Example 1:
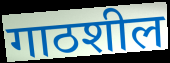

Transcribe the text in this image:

गाठशील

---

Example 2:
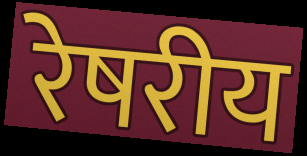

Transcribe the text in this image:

रेषरीय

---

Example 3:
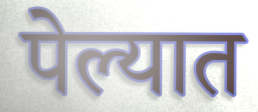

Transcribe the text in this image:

पेल्यात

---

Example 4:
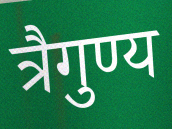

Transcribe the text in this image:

त्रैगुण्य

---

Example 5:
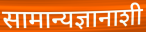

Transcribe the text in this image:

सामान्यज्ञानाशी